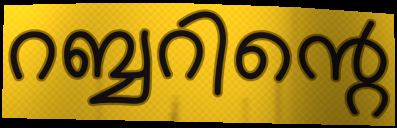
റബ്ബറിന്റെ